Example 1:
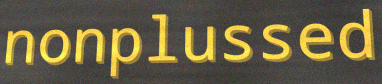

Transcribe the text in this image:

nonplussed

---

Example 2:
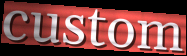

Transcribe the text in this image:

custom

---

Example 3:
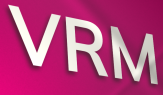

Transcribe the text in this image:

VRM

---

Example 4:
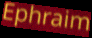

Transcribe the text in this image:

Ephraim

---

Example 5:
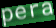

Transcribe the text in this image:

pera